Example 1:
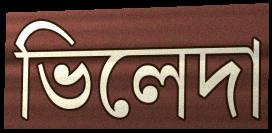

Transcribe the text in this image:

ভিলেদা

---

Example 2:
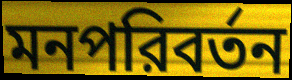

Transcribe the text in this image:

মনপরিবর্তন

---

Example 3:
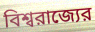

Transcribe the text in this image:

বিশ্বরাজ্যের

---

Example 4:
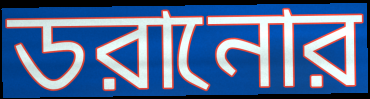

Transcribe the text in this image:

ডরানোর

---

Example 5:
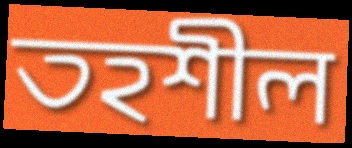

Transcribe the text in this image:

তহশীল